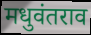
मधुवंतराव